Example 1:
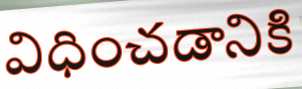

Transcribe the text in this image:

విధించడానికి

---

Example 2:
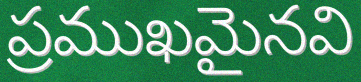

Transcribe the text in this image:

ప్రముఖమైనవి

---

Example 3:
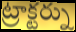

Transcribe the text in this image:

ట్రాక్టర్ను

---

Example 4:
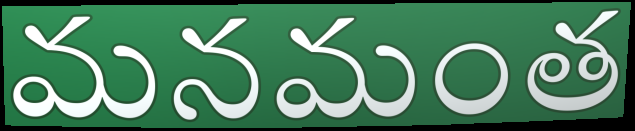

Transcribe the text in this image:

మనమంత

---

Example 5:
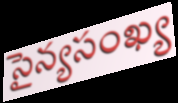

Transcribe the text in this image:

సైన్యసంఖ్య